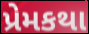
પ્રેમકથા